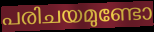
പരിചയമുണ്ടോ